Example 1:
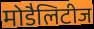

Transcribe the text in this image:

मोडैलिटीज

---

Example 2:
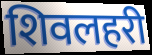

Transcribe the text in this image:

शिवलहरी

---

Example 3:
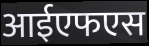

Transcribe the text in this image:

आईएफएस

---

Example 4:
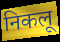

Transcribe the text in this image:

निकलू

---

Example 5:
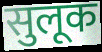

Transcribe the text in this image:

सुलूक